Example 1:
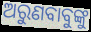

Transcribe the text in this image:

ଅରୁଣବାବୁଙ୍କୁ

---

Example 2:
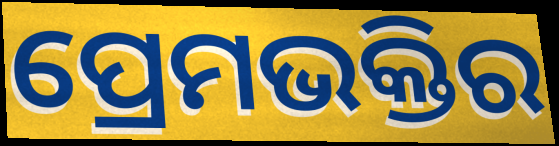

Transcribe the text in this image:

ପ୍ରେମଭକ୍ତିର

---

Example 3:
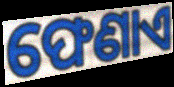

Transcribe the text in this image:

ଫେଣାଏ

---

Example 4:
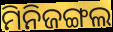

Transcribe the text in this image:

ମିନିଜଙ୍ଗଲ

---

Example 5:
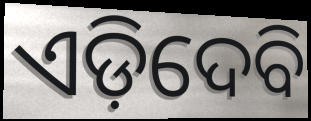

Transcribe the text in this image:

ଏଡ଼ିଦେବି